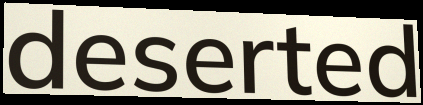
deserted